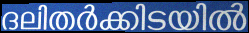
ദലിതർക്കിടയിൽ